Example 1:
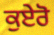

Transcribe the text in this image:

ਕੁਏਰੋ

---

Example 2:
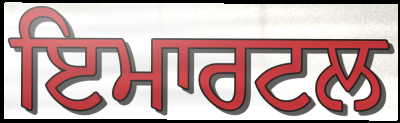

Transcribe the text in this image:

ਇਮਾਰਟਲ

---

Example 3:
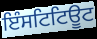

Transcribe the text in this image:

ਇੰਸਟਿਟਿਊਟ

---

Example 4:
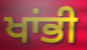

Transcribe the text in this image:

ਖਾਂਭੀ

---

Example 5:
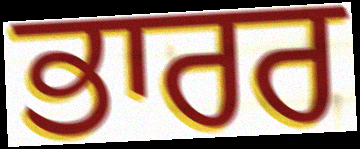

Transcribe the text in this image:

ਭਾਰਰ